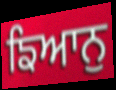
ਙਿਆਨੁ